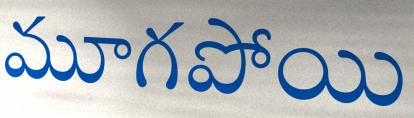
మూగపోయి